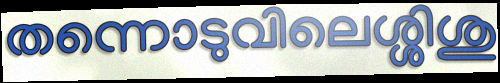
തന്നൊടുവിലെശ്ശിശു